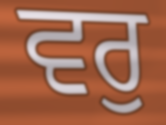
ਵਰੁ